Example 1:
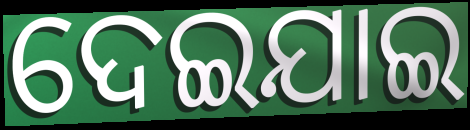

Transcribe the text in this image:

ଦେଇଯାଇ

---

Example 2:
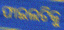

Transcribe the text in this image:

ଫାଇଲଟିକୁ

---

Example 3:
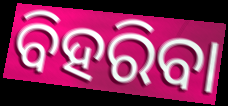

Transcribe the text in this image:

ବିହରିବା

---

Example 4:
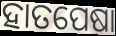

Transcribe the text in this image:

ହାତପେଷା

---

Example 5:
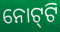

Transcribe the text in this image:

ନୋଟ୍‌ଟି